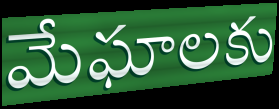
మేఘాలకు